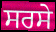
ਸਰਸੇ